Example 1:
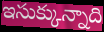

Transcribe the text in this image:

ఇసుక్కున్నాది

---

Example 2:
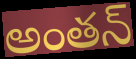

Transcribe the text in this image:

అంతన్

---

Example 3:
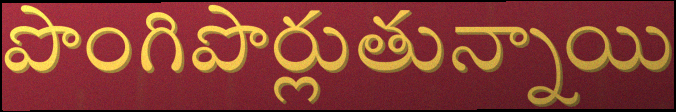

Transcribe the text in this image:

పొంగిపొర్లుతున్నాయి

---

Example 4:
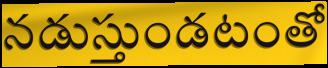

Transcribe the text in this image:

నడుస్తుండటంతో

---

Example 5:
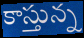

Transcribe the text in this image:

కాస్తున్న